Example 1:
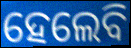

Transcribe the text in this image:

ହେଲେବି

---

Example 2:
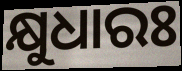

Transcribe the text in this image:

କ୍ଷୁଧାରଃ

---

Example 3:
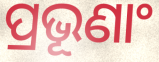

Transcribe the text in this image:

ପ୍ରଭୂଣାଂ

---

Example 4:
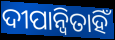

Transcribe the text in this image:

ଦୀପାନ୍ୱିତାହିଁ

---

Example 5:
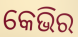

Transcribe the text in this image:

କେଭିର